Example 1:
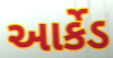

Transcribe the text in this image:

આર્કેડ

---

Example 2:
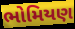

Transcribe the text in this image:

ભોમિયણ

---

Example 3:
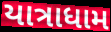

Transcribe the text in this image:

યાત્રાધામ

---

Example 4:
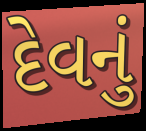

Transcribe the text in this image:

દેવનું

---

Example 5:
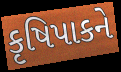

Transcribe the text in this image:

કૃષિપાકને